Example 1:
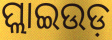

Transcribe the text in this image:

ପ୍ଲାଇଉଡ଼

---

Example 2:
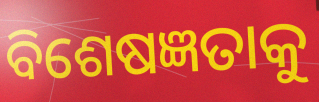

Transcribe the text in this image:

ବିଶେଷଜ୍ଞତାକୁ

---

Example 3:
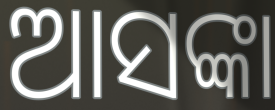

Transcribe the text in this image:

ଆସଙ୍କା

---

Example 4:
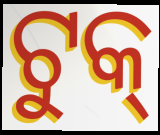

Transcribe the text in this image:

ଟୁକ୍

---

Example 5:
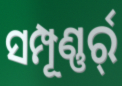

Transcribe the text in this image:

ସମ୍ପୂଣ୍ଣର୍ର୍